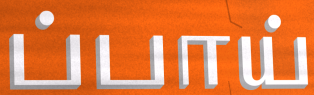
ப்பாய்